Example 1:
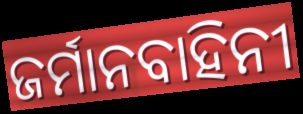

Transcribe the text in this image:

ଜର୍ମାନବାହିନୀ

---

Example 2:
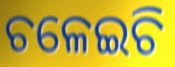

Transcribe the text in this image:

ଚଳେଇଚି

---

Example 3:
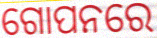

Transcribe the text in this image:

ଗୋପନରେ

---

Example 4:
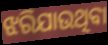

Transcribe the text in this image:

ଝରିଯାଉଥିବା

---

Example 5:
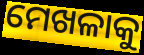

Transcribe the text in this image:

ମେଖଳାକୁ